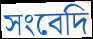
সংবেদি